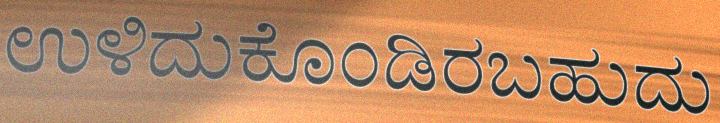
ಉಳಿದುಕೊಂಡಿರಬಹುದು